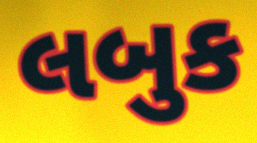
લબુક